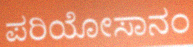
ಪರಿಯೋಸಾನಂ